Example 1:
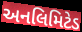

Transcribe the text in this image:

અનલિમિટેડ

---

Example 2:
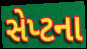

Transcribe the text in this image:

સેપ્ટના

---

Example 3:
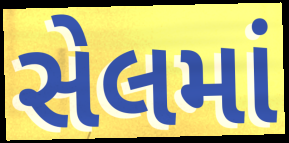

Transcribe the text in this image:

સેલમાં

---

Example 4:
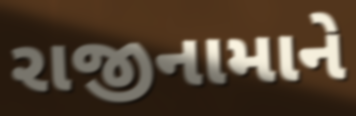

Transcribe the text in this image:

રાજીનામાને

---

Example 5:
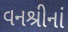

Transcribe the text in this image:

વનશ્રીનાં